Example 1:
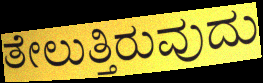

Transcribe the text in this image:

ತೇಲುತ್ತಿರುವುದು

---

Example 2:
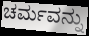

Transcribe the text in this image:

ಚರ್ಮವನ್ನು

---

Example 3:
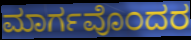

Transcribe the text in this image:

ಮಾರ್ಗವೊಂದರ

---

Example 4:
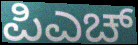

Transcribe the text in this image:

ಪಿಎಚ್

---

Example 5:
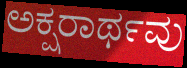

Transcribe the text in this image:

ಅಕ್ಷರಾರ್ಥವು